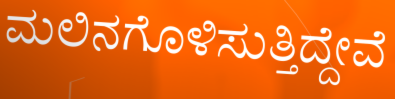
ಮಲಿನಗೊಳಿಸುತ್ತಿದ್ದೇವೆ